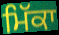
ਮਿੱਕਾ